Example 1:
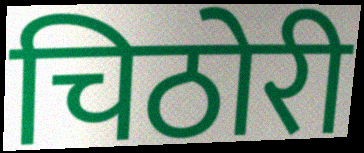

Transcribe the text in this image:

चिठोरी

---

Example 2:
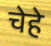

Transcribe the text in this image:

चेहे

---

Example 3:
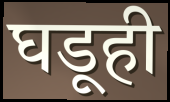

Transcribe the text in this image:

घडूही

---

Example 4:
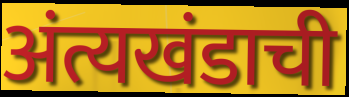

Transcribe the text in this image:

अंत्यखंडाची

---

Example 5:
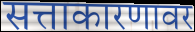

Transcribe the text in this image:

सत्ताकारणावर